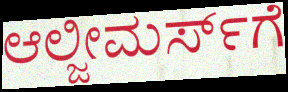
ಆಲ್ಜೀಮರ್ಸ್‌ಗೆ